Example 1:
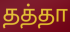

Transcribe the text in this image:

தத்தா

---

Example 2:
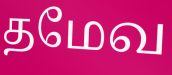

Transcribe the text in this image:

தமேவ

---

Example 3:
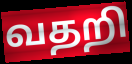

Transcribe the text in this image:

வதறி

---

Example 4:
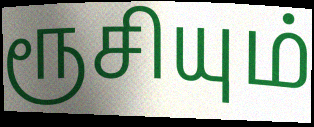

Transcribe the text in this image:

ரூசியும்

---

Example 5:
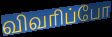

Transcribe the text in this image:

விவரிப்போ